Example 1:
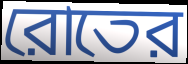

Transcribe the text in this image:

রোতের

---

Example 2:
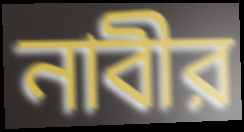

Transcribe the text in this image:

নাবীর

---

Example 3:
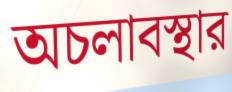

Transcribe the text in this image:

অচলাবস্থার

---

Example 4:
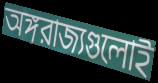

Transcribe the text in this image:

অঙ্গরাজ্যগুলোই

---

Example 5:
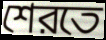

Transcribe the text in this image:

শেরতে